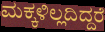
ಮಕ್ಕಳಿಲ್ಲದಿದ್ದರೆ